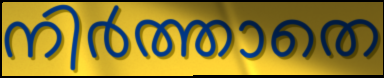
നിർത്താതെ